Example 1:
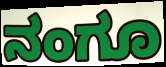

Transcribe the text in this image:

ನಂಗೂ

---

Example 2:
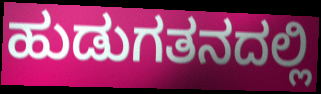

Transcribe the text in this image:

ಹುಡುಗತನದಲ್ಲಿ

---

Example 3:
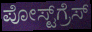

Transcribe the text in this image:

ಪೋಸ್ಟ್‌ಗ್ರೆಸ್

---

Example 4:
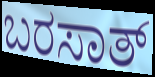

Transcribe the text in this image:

ಬರಸಾತ್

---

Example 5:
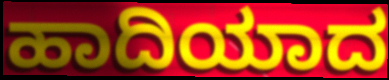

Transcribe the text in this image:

ಹಾದಿಯಾದ